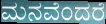
ಮನವೆಂದರೆ